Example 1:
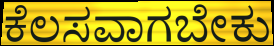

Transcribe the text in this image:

ಕೆಲಸವಾಗಬೇಕು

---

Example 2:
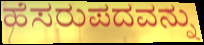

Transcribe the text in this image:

ಹೆಸರುಪದವನ್ನು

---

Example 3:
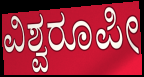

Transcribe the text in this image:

ವಿಶ್ವರೂಪೀ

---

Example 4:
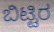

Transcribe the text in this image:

ಬಿಟ್ಟಿರ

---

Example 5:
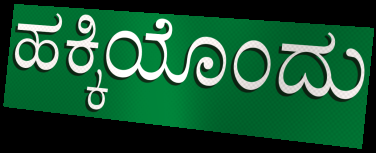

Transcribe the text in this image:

ಹಕ್ಕಿಯೊಂದು